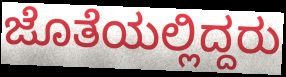
ಜೊತೆಯಲ್ಲಿದ್ದರು